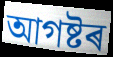
আগষ্টৰ